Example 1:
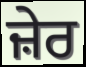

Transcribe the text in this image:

ਜ਼ੇਰ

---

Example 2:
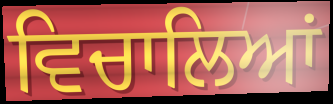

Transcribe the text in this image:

ਵਿਚਾਲਿਆਂ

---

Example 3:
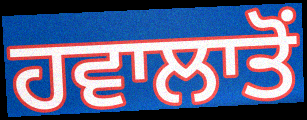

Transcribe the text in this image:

ਹਵਾਲਾਤੋਂ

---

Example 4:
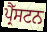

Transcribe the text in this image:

ਪ੍ਰੈੱਸਟਨ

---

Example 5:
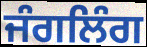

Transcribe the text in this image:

ਜੰਗਲਿੰਗ